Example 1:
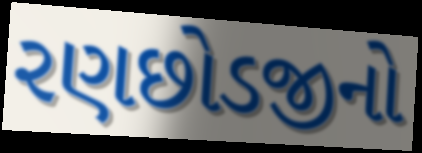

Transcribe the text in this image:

રણછોડજીનો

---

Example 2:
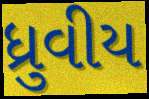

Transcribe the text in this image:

ધ્રુવીય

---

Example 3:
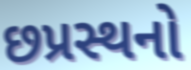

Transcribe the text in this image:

છપ્રસ્થનો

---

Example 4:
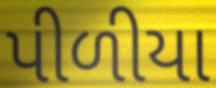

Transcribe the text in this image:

પીળીયા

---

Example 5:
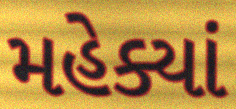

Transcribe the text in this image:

મહેક્યાં